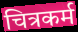
चित्रकर्म